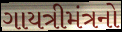
ગાયત્રીમંત્રનો